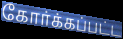
கோர்க்கப்பட்ட